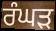
ਰੰਘੜ